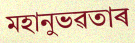
মহানুভৱতাৰ